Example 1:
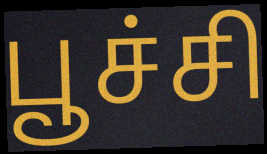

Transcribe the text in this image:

பூச்சி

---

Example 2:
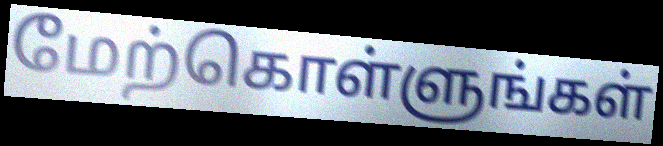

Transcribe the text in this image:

மேற்கொள்ளுங்கள்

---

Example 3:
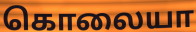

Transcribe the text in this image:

கொலையா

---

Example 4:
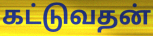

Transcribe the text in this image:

கட்டுவதன்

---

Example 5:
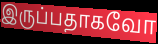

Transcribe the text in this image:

இருப்பதாகவோ